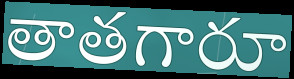
తాతగారూ